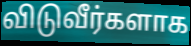
விடுவீர்களாக